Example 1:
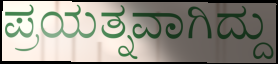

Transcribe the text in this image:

ಪ್ರಯತ್ನವಾಗಿದ್ದು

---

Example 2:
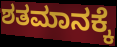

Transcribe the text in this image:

ಶತಮಾನಕ್ಕೆ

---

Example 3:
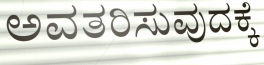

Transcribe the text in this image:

ಅವತರಿಸುವುದಕ್ಕೆ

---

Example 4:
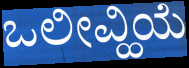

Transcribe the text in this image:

ಒಲೀವ್ಹಿಯೆ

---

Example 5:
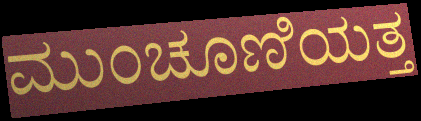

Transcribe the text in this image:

ಮುಂಚೂಣಿಯತ್ತ